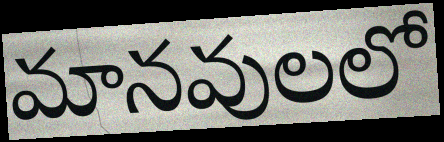
మానవులలో